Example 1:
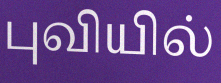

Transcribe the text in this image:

புவியில்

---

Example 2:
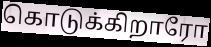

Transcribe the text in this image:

கொடுக்கிறாரோ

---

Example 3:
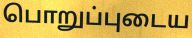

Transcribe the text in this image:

பொறுப்புடைய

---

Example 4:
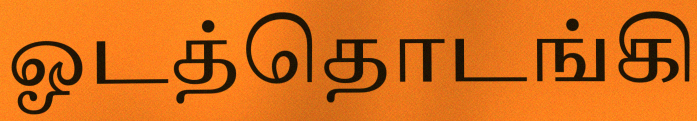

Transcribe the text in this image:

ஓடத்தொடங்கி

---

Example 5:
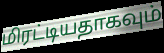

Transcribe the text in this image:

மிரட்டியதாகவும்